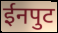
ईनपुट